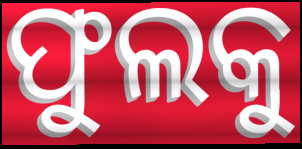
ଫୁଲକୁ